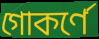
গোকর্ণে